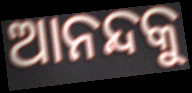
ଆନନ୍ଦକୁ